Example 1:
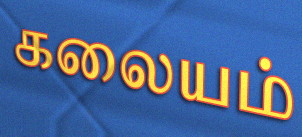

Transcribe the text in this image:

கலையம்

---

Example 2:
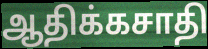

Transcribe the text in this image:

ஆதிக்கசாதி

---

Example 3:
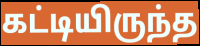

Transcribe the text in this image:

கட்டியிருந்த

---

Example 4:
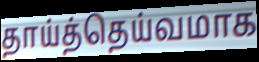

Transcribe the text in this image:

தாய்த்தெய்வமாக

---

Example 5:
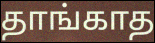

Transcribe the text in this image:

தாங்காத